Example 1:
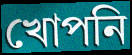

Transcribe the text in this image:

খোপনি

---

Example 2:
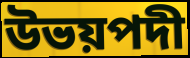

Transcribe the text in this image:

উভয়পদী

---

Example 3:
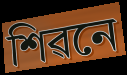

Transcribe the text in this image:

শিৱনে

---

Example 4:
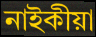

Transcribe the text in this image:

নাইকীয়া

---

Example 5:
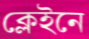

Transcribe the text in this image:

ক্লেইনে